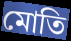
মোতি